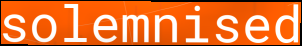
solemnised